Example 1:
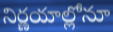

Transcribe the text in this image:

నిర్ణయాల్లోనూ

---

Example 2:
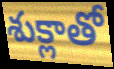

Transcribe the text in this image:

శుక్లాతో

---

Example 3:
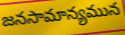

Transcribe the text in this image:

జనసామాన్యమున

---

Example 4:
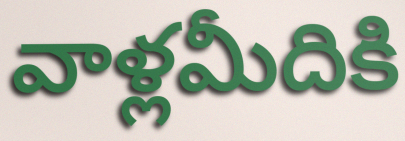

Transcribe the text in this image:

వాళ్లమీదికి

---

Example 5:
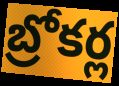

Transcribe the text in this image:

బ్రోకర్ల